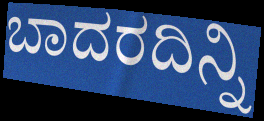
ಬಾದರದಿನ್ನಿ